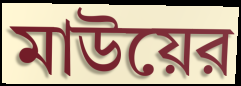
মাউয়ের